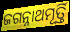
ଜଗନ୍ନାଥମୂର୍ତ୍ତି